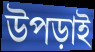
উপড়াই